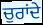
ਚੁਰਾਂਦੇ